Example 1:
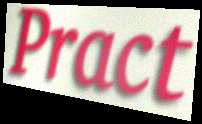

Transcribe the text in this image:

Pract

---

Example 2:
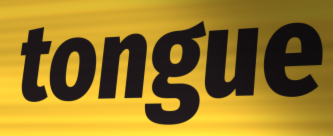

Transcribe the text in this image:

tongue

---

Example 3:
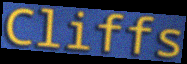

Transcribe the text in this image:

Cliffs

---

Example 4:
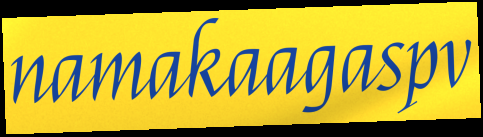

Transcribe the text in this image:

namakaagaspv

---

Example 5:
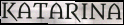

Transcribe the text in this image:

KATARINA